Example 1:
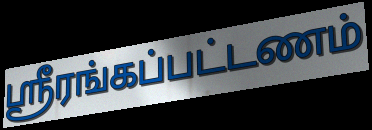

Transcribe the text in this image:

ஸ்ரீரங்கப்பட்டணம்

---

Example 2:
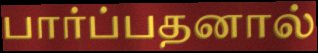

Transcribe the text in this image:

பார்ப்பதனால்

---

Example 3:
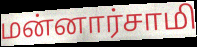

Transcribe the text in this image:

மன்னார்சாமி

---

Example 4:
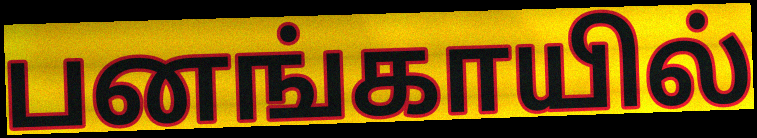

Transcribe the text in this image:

பனங்காயில்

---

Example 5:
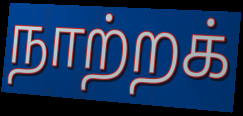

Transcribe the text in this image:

நாற்றக்